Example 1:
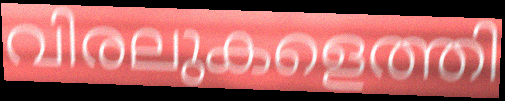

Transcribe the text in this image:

വിരലുകളെത്തി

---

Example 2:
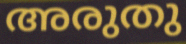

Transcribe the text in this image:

അരുതു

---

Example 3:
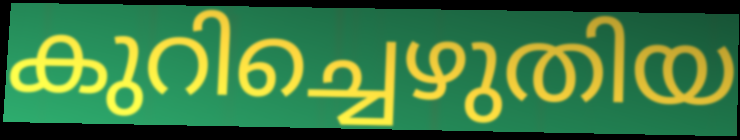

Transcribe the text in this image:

കുറിച്ചെഴുതിയ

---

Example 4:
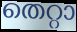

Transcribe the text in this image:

തെറ്റാ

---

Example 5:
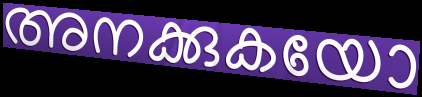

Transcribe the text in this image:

അനക്കുകയോ